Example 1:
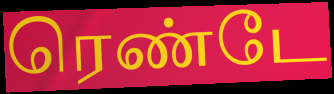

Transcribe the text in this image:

ரெண்டே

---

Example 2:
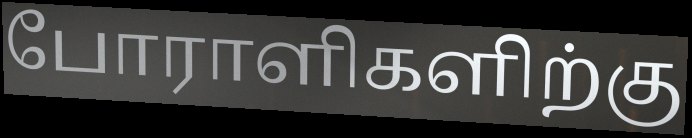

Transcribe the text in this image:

போராளிகளிற்கு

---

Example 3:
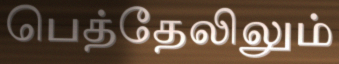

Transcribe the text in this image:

பெத்தேலிலும்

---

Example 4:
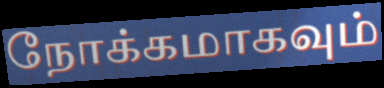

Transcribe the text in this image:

நோக்கமாகவும்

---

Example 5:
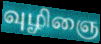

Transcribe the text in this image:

வுழிஞை